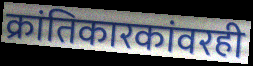
क्रांतिकारकांवरही